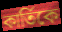
কার্তিকে